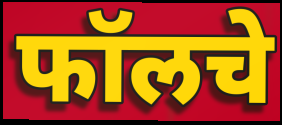
फॉलचे